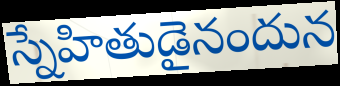
స్నేహితుడైనందున